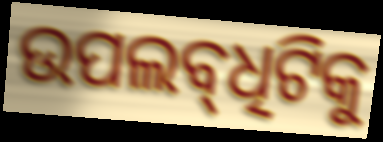
ଉପଲବ୍‌ଧିଟିକୁ